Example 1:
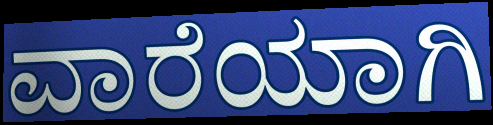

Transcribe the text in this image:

ವಾರೆಯಾಗಿ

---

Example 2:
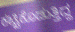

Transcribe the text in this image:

ಕಟ್ಟಿಕೊಡುತ್ತಿದ್ದ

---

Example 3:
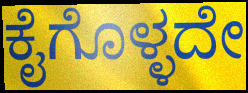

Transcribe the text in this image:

ಕೈಗೊಳ್ಳದೇ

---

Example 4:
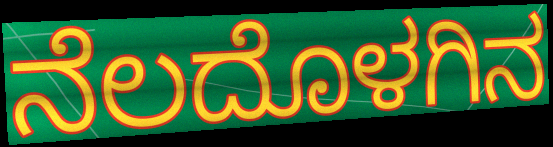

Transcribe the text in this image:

ನೆಲದೊಳಗಿನ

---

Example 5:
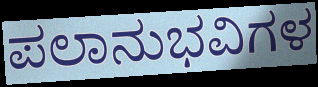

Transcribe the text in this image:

ಪಲಾನುಭವಿಗಳ